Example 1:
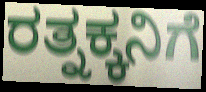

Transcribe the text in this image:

ರತ್ನಕ್ಕನಿಗೆ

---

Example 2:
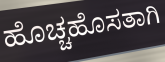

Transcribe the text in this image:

ಹೊಚ್ಚಹೊಸತಾಗಿ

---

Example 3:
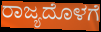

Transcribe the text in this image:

ರಾಜ್ಯದೊಳಗೆ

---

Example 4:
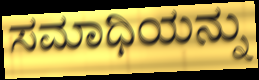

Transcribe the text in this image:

ಸಮಾಧಿಯನ್ನು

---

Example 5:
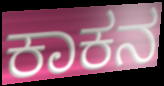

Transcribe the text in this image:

ಕಾಕನ